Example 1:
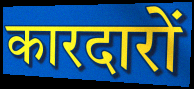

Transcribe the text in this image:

कारदारों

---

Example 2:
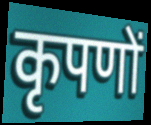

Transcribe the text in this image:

कृपणों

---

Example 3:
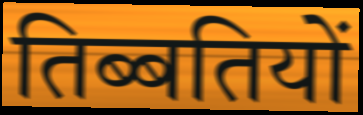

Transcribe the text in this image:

तिब्बतियों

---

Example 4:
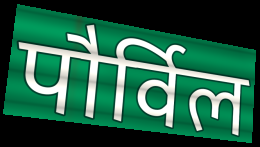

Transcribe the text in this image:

पौर्विल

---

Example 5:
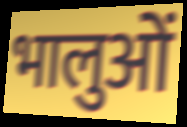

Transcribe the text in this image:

भालुओं